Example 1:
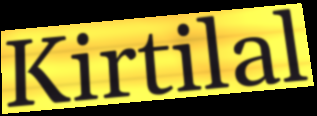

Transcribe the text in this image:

Kirtilal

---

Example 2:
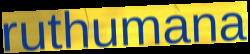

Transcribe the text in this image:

ruthumana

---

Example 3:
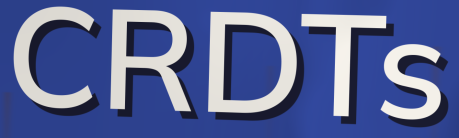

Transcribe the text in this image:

CRDTs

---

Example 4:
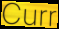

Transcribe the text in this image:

Curr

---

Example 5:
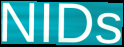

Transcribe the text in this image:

NIDs